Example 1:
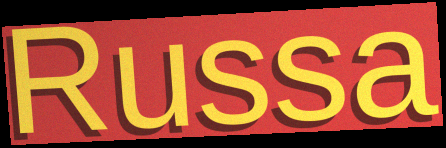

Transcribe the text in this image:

Russa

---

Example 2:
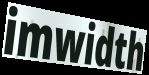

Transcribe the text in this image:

imwidth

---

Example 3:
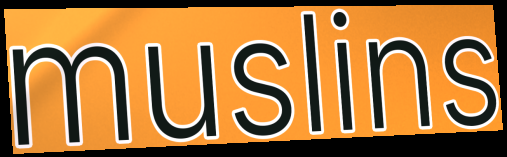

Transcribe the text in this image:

muslins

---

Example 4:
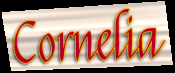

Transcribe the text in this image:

Cornelia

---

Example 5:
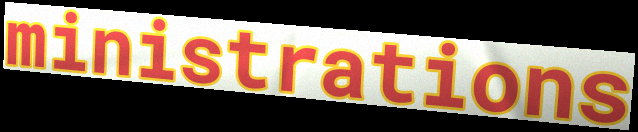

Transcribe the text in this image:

ministrations